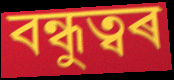
বন্ধুত্বৰ